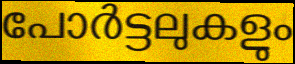
പോർട്ടലുകളും